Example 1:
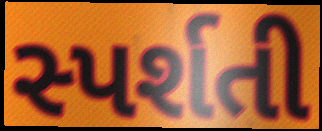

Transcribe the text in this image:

સ્પર્શતી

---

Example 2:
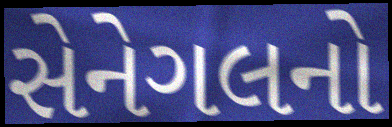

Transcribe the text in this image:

સેનેગલનો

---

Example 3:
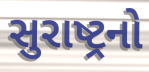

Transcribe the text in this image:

સુરાષ્ટ્રનો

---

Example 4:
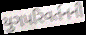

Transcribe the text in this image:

યુગપરિવર્તનની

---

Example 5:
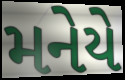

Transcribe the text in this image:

મનેયે